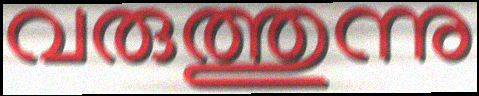
വരുത്തുന്നു